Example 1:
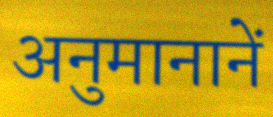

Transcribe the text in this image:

अनुमानानें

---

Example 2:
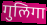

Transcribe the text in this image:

गुलिगा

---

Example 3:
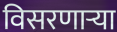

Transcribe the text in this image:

विसरणाऱ्या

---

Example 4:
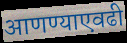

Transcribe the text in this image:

आणण्याएवढी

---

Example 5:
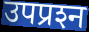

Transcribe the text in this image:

उपप्रश्‍न